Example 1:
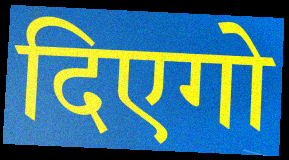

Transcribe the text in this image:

दिएगो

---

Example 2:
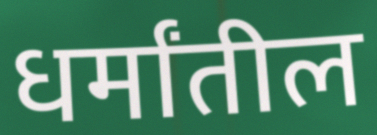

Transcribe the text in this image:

धर्मांतील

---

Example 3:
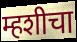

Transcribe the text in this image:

म्हशीचा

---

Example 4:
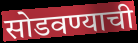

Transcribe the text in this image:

सोडवण्याची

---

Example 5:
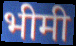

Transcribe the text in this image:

भीमी